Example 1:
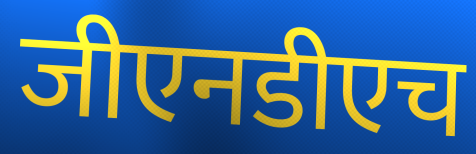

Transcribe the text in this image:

जीएनडीएच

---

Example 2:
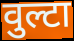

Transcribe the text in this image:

वुल्टा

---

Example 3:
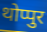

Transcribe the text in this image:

थोप्पुर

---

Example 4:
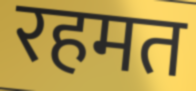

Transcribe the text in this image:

रहमत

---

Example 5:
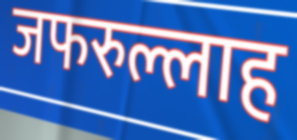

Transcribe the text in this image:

जफरुल्लाह